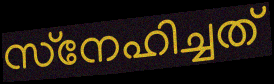
സ്‌നേഹിച്ചത്